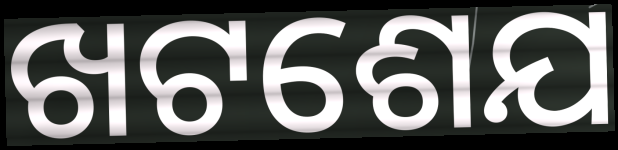
ଖଟଶେଯ